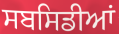
ਸਬਸਿਡੀਆਂ